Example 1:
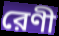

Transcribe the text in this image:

রেণী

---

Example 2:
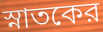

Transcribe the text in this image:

স্নাতকের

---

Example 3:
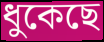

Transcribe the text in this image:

ধুকেছে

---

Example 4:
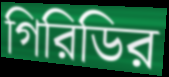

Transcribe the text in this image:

গিরিডির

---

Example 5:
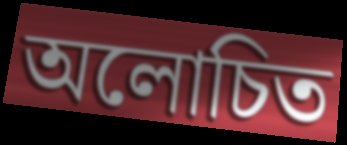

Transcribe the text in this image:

অলোচিত